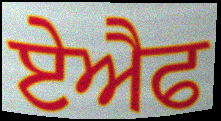
ਏਐਫ